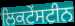
ਲਿਕਟੇਂਸਟੀਨ